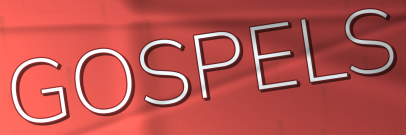
GOSPELS